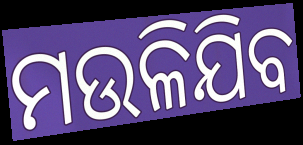
ମଉଳିଯିବ